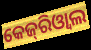
କେଜ୍‌ରିଓ୍ବାଲ